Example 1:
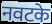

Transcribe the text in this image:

नवटके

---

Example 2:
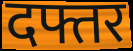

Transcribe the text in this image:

दफ्तर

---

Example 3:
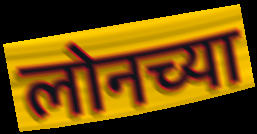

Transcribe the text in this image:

लोनच्या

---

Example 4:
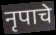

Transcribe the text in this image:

नृपाचे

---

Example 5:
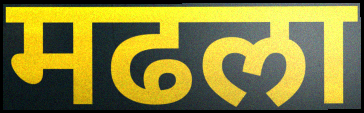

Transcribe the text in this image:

मढला